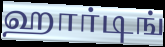
ஹார்டிங்